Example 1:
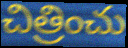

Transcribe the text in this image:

చిత్రించు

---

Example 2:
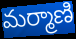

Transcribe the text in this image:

మర్మాణి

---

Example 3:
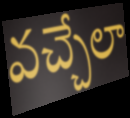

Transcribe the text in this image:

వచ్చేలా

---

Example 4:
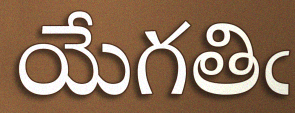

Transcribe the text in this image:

యేగతిఁ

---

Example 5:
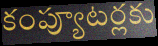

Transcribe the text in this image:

కంప్యూటర్లకు